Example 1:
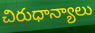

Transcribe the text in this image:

చిరుధాన్యాలు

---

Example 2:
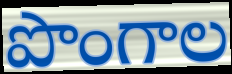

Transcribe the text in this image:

పొంగాల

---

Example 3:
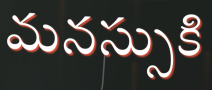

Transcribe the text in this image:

మనస్సుకి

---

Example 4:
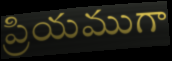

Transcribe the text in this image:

ప్రియముగా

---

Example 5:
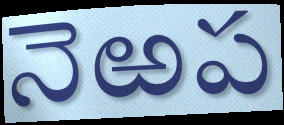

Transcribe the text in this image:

నెఱప